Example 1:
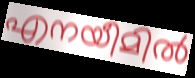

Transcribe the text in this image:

എനയീമിൽ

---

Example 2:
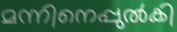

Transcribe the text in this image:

മന്നിനെപ്പുൽകി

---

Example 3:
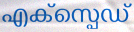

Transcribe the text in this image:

എക്സ്പെഡ്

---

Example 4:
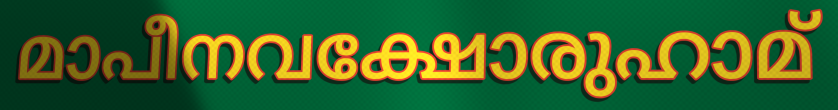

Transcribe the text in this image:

മാപീനവക്ഷോരുഹാമ്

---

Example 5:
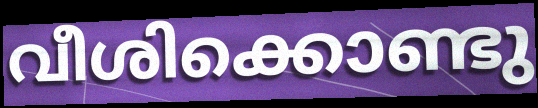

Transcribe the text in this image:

വീശിക്കൊണ്ടു